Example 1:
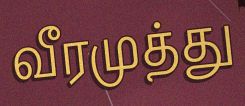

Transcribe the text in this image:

வீரமுத்து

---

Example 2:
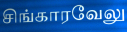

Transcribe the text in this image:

சிங்காரவேலு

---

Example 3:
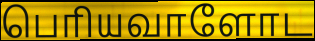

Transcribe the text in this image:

பெரியவாளோட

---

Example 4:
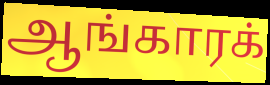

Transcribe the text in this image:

ஆங்காரக்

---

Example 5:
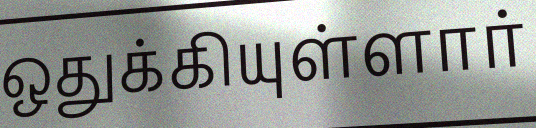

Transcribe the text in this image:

ஒதுக்கியுள்ளார்